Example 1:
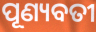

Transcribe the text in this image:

ପୂଣ୍ୟବତୀ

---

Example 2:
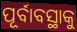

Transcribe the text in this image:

ପୂର୍ବାବସ୍ଥାକୁ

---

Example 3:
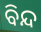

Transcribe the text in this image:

ବିନ୍ଦ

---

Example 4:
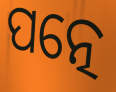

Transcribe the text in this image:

ପତ୍ନେ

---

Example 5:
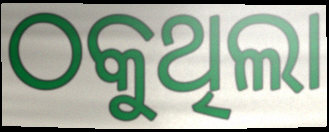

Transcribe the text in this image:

ଠକୁଥିଲା